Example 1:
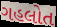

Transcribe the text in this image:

ગહલોત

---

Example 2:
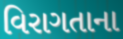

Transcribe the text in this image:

વિરાગતાના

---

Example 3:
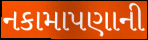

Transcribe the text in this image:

નકામાપણાની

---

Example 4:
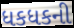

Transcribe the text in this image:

ધકધકની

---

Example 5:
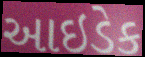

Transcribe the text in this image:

આઇડેક